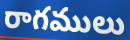
రాగములు